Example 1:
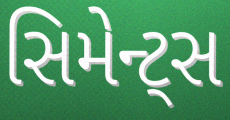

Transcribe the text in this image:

સિમેન્ટ્સ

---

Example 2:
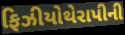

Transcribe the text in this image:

ફિઝીયોથેરાપીની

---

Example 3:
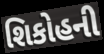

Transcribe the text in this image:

શિકોહની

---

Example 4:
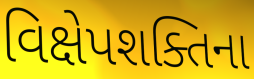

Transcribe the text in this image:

વિક્ષેપશક્તિના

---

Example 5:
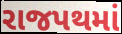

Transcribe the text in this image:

રાજપથમાં